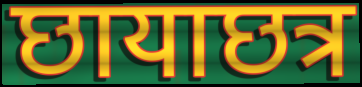
छायाछत्र